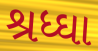
શ્રધ્ઘા